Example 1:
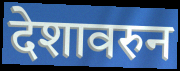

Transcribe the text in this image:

देशावरुन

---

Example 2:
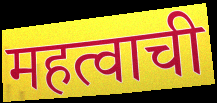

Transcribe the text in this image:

महत्वाची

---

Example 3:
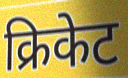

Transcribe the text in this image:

क्रिकेट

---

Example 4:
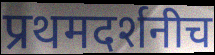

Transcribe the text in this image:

प्रथमदर्शनीच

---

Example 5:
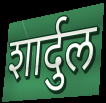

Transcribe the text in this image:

शार्दुल